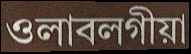
ওলাবলগীয়া